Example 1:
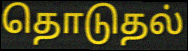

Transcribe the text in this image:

தொடுதல்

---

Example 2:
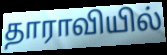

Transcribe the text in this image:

தாராவியில்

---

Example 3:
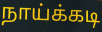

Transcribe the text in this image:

நாய்க்கடி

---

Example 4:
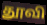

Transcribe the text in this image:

தூவி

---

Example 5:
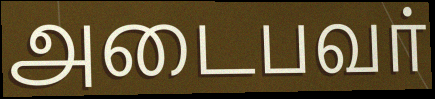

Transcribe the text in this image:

அடைபவர்